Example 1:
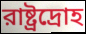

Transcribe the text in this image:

রাষ্ট্রদ্রোহ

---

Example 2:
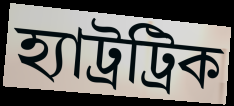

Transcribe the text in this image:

হ্যাট্রট্রিক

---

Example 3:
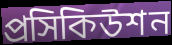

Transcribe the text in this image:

প্রসিকিউশন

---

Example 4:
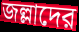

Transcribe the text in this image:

জল্লাদের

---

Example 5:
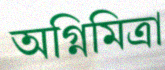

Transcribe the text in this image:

অগ্নিমিত্রা